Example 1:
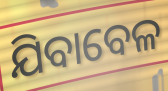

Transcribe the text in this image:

ଯିବାବେଳ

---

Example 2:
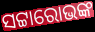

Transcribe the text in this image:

ସଟ୍ଟାରୋଭଙ୍କ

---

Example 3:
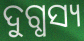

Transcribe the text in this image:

ଦୁଗ୍ଧସ୍ୟ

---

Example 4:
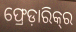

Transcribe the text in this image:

ଫ୍ରେଡ଼ାରିକ୍‍ର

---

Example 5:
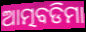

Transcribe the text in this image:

ଆତ୍ମବଡିମା